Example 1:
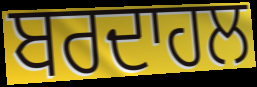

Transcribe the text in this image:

ਬਰਦਾਹਲ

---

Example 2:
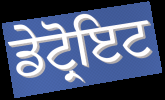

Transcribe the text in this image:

ਡੇਟ੍ਰੋਇਟ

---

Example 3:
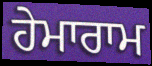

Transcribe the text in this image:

ਹੇਮਾਰਾਮ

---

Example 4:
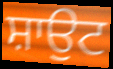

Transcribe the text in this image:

ਸ਼ਾਉਟ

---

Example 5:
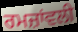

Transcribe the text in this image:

ਰਮਜ਼ਾਂਵਲੀ